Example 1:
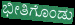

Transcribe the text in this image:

ಭೀತಿಗೊಂಡು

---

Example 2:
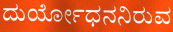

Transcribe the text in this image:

ದುರ್ಯೋಧನನಿರುವ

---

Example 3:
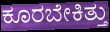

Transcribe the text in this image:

ಕೂರಬೇಕಿತ್ತು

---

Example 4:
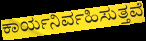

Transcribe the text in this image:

ಕಾರ್ಯನಿರ್ವಹಿಸುತ್ತವೆ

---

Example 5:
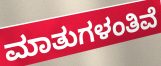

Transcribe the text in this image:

ಮಾತುಗಳಂತಿವೆ